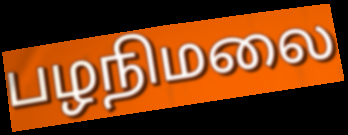
பழநிமலை